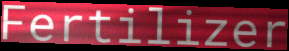
Fertilizer